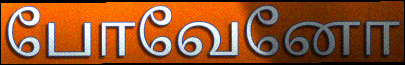
போவேனோ